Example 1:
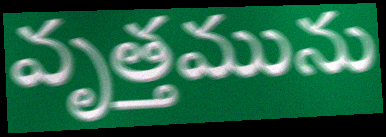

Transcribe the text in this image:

వృత్తమును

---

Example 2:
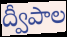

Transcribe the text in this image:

ద్వీపాల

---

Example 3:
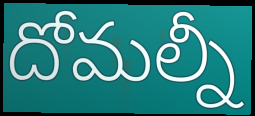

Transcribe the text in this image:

దోమల్నీ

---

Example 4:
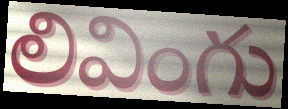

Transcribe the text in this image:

లివింగు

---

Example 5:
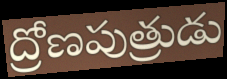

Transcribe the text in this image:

ద్రోణపుత్రుడు